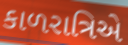
કાળરાત્રિએ